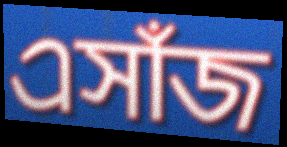
এসাঁজ